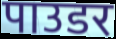
पाउडर